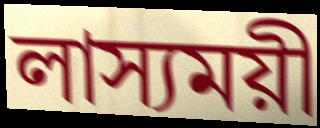
লাস্যময়ী